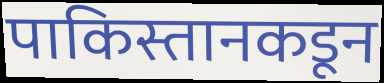
पाकिस्तानकडून